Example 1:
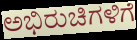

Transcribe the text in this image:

ಅಭಿರುಚಿಗಳಿಗೆ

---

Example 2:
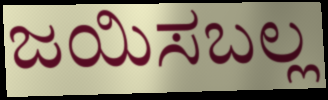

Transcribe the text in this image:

ಜಯಿಸಬಲ್ಲ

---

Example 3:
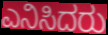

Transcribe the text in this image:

ಎನಿಸಿದರು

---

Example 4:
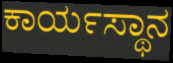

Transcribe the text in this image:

ಕಾರ್ಯಸ್ಥಾನ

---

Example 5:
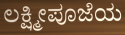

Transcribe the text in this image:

ಲಕ್ಷ್ಮೀಪೂಜೆಯ